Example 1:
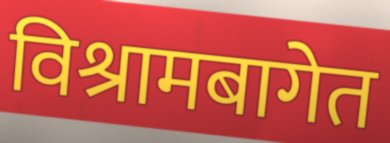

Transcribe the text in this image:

विश्रामबागेत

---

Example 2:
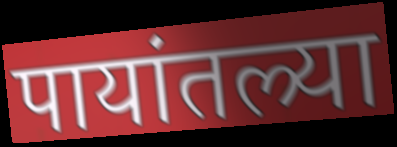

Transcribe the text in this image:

पायांतल्या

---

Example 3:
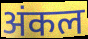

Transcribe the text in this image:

अंकल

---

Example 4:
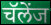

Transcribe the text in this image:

चॅलेंज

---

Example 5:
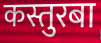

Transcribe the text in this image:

कस्तुरबा